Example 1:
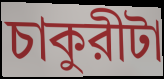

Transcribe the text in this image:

চাকুরীটা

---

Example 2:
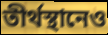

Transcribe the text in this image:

তীর্থস্থানেও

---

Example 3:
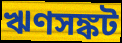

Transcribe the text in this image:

ঋণসঙ্কট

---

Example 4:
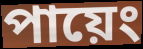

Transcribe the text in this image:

পায়েং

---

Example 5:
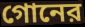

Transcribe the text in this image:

গোনের